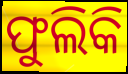
ଫୁଲିକି